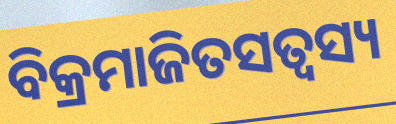
ବିକ୍ରମାଜିତସତ୍ଵସ୍ୟ